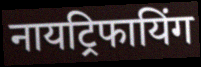
नायट्रिफायिंग